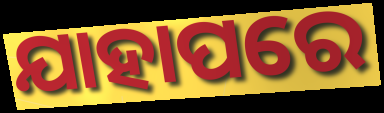
ଯାହାପରେ